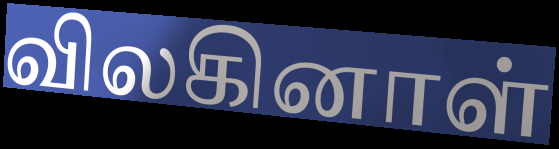
விலகினாள்